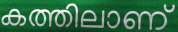
കത്തിലാണ്